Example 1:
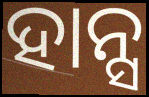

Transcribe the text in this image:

ହାନ୍ସ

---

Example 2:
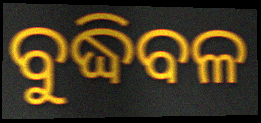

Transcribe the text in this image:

ବୁଦ୍ଧିବଳ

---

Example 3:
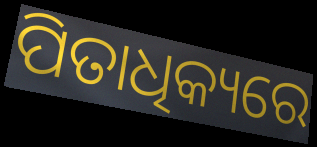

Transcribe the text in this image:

ପିତାଧିକ୍ୟରେ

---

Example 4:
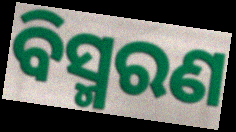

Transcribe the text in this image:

ବିସ୍ମରଣ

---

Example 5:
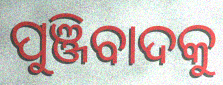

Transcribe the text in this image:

ପୁଞ୍ଜିବାଦକୁ